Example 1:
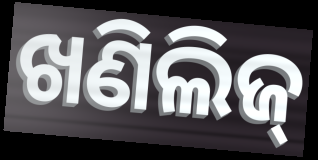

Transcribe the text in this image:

ଖଣିଲିଜ୍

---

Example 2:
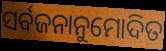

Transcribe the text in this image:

ସର୍ବଜନାନୁମୋଦିତ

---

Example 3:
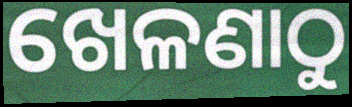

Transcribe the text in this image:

ଖେଳଣାଠୁ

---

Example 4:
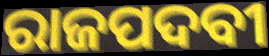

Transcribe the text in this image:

ରାଜପଦବୀ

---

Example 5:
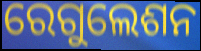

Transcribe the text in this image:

ରେଗୁଲେଶନ